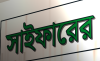
সাইফারের